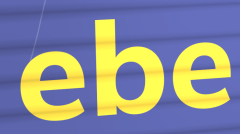
ebe